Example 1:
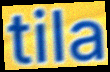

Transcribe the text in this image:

tila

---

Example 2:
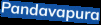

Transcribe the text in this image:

Pandavapura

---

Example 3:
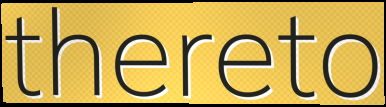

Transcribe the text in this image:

thereto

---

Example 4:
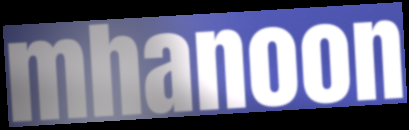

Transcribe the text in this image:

mhanoon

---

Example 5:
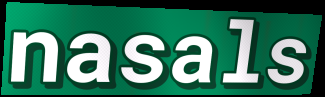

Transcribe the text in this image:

nasals